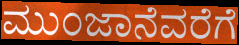
ಮುಂಜಾನೆವರೆಗೆ